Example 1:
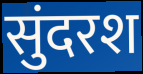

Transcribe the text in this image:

सुंदरश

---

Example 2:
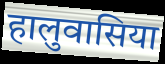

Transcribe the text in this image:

हालुवासिया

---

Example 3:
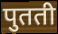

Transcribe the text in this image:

पुतती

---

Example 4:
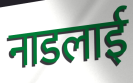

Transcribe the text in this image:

नाडलाई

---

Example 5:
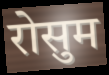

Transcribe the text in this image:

रोसुम